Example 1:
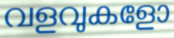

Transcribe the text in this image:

വളവുകളോ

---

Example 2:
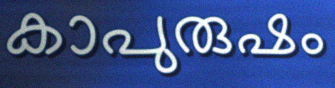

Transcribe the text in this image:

കാപുരുഷം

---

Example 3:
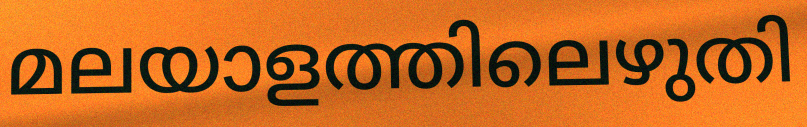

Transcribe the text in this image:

മലയാളത്തിലെഴുതി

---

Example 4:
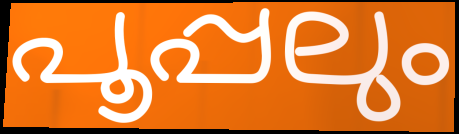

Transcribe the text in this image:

പൂപ്പലും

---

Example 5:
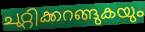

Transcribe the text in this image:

ചുറ്റിക്കറങ്ങുകയും